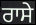
ਰਾਸੇ